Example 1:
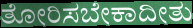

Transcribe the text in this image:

ತೋರಿಸಬೇಕಾದೀತು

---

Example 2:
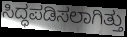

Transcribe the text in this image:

ಸಿದ್ಧಪಡಿಸಲಾಗಿತ್ತು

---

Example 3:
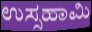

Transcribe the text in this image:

ಉಸ್ಸಹಾಮಿ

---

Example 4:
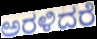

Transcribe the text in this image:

ಅರಳಿದರೆ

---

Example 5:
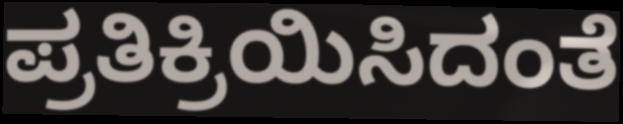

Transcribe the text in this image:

ಪ್ರತಿಕ್ರಿಯಿಸಿದಂತೆ